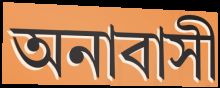
অনাবাসী